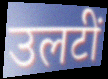
उलटीं